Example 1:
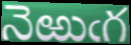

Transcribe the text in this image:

నెఱుఁగ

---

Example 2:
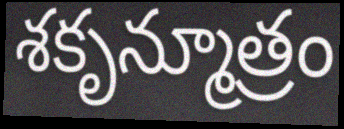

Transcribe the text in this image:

శకృన్మూత్రం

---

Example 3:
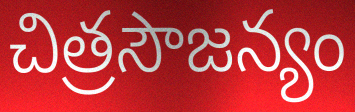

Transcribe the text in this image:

చిత్రసౌజన్యం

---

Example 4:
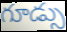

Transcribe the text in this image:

గూడ్సు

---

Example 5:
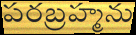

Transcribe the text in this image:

పరబ్రహ్మను